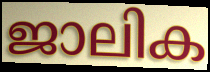
ജാലിക